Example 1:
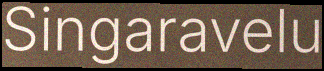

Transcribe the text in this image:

Singaravelu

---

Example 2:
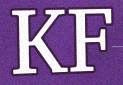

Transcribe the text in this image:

KF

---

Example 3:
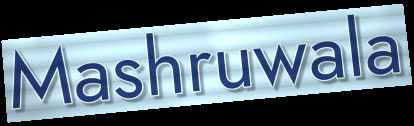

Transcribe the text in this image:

Mashruwala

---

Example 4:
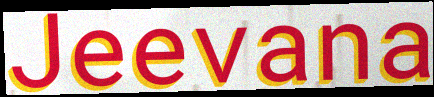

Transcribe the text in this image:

Jeevana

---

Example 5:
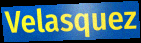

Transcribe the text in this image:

Velasquez